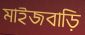
মাইজবাড়ি